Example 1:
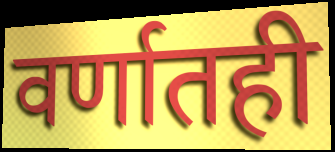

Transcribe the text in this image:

वर्णातही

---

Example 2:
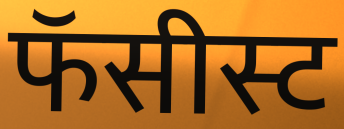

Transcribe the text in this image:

फॅसीस्ट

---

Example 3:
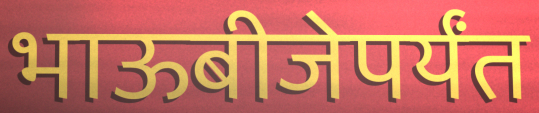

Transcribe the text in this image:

भाऊबीजेपर्यंत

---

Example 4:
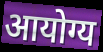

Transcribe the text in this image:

आयोग्य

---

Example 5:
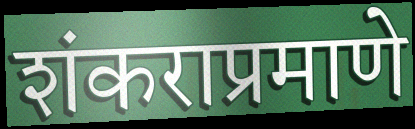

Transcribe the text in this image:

शंकराप्रमाणे